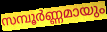
സമ്പൂർണ്ണമായും